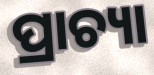
ପ୍ରାଚ୍ୟା